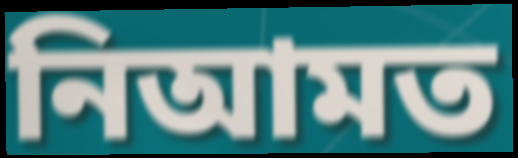
নিআমত